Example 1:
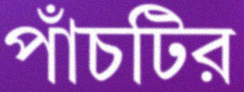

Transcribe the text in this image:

পাঁচটির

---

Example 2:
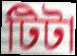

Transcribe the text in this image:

টিটা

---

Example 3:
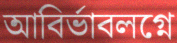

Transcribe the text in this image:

আবির্ভাবলগ্নে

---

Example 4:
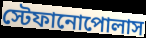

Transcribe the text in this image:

স্টেফানোপোলাস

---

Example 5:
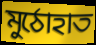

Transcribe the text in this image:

মুঠোহাত